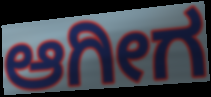
ಆಗೀಗ